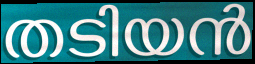
തടിയൻ